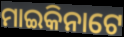
ମାଇକିନାଟେ